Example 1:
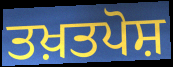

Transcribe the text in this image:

ਤਖ਼ਤਪੋਸ਼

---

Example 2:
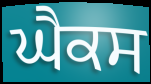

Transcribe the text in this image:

ਘੈਕਸ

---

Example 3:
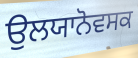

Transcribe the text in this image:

ਉਲਯਾਨੋਵਸਕ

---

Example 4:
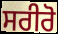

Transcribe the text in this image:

ਸਰੀਰੋ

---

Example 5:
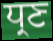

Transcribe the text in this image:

ਧ੍ਰਣ